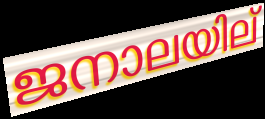
ജനാലയില്